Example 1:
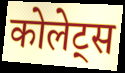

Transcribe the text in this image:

कोलेट्स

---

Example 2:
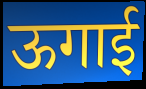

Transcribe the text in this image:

ऊगाई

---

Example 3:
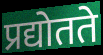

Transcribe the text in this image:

प्रद्योतते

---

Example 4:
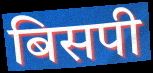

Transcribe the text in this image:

बिसपी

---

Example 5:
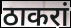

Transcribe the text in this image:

ठाकरां